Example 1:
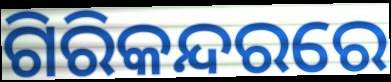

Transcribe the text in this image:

ଗିରିକନ୍ଦରରେ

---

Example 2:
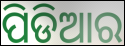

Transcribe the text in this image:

ପିଡିଆର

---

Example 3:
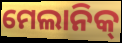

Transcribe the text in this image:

ମେଲାନିକ୍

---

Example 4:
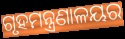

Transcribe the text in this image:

ଗୃହମନ୍ତ୍ରଣାଳୟର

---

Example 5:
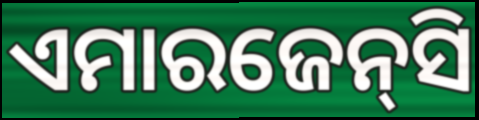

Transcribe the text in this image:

ଏମାରଜେନ୍‌ସି